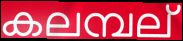
കലമ്പല്